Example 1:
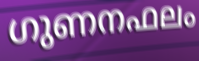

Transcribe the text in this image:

ഗുണനഫലം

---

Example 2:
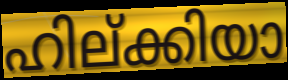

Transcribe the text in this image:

ഹില്ക്കിയാ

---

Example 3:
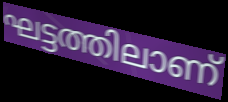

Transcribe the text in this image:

ഘട്ടത്തിലാണ്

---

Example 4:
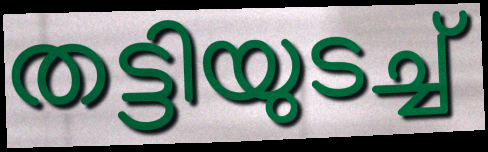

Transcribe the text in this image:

തട്ടിയുടച്ച്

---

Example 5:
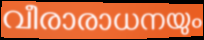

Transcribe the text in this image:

വീരാരാധനയും